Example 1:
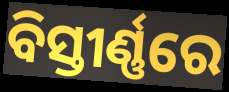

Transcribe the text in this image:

ବିସ୍ତୀର୍ଣ୍ଣରେ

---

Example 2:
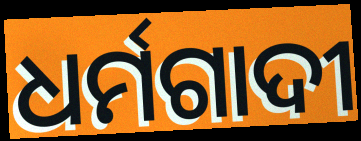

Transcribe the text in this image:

ଧର୍ମଗାଦୀ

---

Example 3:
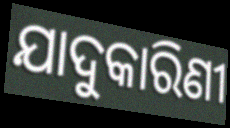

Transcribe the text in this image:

ଯାଦୁକାରିଣୀ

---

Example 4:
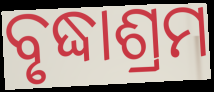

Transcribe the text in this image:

ବୃଦ୍ଧାଶ୍ରମ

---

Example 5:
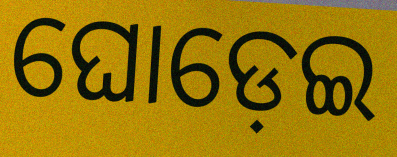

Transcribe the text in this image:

ଘୋଡ଼େଇ